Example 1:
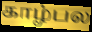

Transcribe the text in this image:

காழ்பல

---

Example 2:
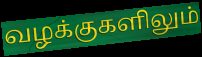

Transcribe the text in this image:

வழக்குகளிலும்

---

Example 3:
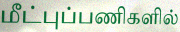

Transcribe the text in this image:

மீட்புப்பணிகளில்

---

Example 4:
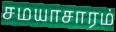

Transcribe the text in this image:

சமயாசாரம்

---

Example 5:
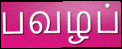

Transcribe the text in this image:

பவழப்